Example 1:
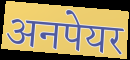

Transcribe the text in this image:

अनपेयर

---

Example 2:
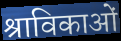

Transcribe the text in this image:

श्राविकाओं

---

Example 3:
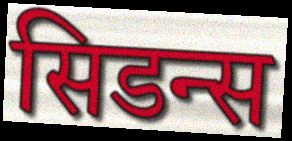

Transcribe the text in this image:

सिडन्स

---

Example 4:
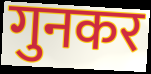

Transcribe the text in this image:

गुनकर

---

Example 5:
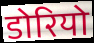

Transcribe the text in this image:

डोरियो